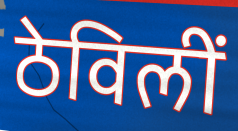
ठेविलीं